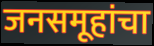
जनसमूहांचा